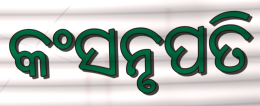
କଂସନୃପତି